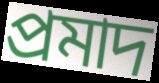
প্রমাদ